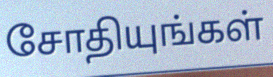
சோதியுங்கள்